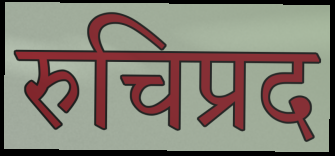
रुचिप्रद